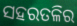
ସହରତଳିର